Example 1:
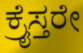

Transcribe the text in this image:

ಕ್ರೈಸ್ತರೇ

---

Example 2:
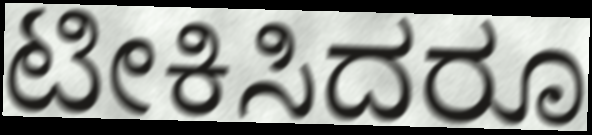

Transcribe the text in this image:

ಟೀಕಿಸಿದರೂ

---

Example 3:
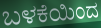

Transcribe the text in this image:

ಬಳಕೆಯಿಂದ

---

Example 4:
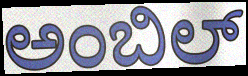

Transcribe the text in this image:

ಅಂಬಿಲ್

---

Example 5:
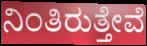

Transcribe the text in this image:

ನಿಂತಿರುತ್ತೇವೆ